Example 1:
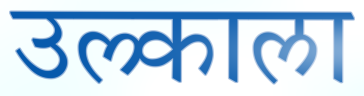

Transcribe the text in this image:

उल्काला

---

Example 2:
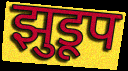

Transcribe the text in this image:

झुडूप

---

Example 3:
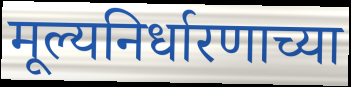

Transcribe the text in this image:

मूल्यनिर्धारणाच्या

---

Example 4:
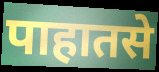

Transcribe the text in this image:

पाहातसे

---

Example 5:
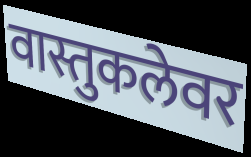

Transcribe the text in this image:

वास्तुकलेवर